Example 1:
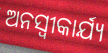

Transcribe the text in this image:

ଅନସ୍ୱୀକାର୍ଯ୍ୟ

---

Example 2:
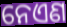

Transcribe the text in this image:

ନେଏଣ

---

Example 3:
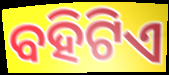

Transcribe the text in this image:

ବହିଟିଏ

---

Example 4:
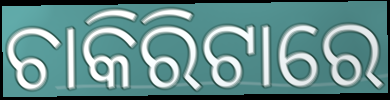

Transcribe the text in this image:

ଚାକିରିଟାରେ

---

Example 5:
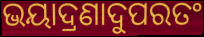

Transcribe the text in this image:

ଭୟାଦ୍ରଣାଦୁପରତଂ